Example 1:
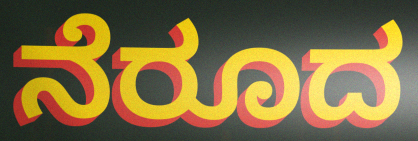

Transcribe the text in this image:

ನೆರೂದ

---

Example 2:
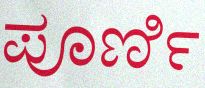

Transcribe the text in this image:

ಪೂರ್ಣಿ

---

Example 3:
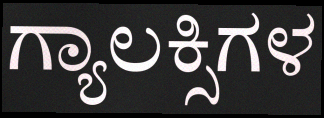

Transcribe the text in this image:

ಗ್ಯಾಲಕ್ಸಿಗಳ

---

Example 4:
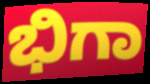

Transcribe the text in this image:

ಭಿಗಾ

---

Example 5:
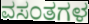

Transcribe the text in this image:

ವಸಂತಗಳ